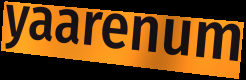
yaarenum